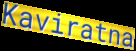
Kaviratna